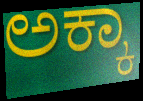
ಅಕ್ಕಾ